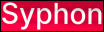
Syphon